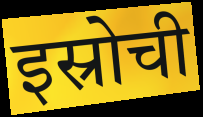
इस्रोची